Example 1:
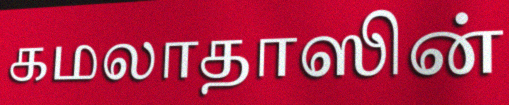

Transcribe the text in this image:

கமலாதாஸின்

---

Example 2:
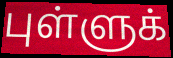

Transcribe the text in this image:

புள்ளுக்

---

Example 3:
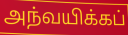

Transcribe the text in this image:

அந்வயிக்கப்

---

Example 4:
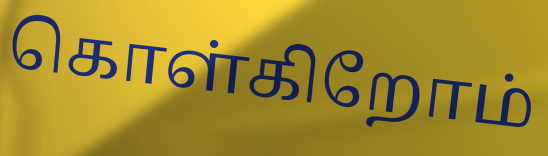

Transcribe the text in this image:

கொள்கிறோம்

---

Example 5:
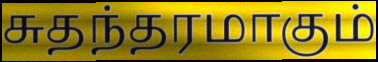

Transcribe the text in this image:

சுதந்தரமாகும்